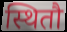
स्थितौ